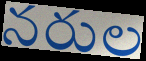
నరుల